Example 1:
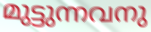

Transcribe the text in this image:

മുട്ടുന്നവനു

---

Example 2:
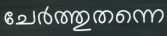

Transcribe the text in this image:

ചേർത്തുതന്നെ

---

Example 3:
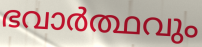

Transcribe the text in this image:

ഭവാർത്ഥവും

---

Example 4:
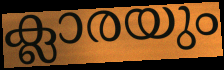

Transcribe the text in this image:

ക്ലാരയും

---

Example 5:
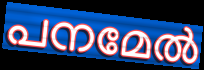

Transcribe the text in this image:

പനമേൽ